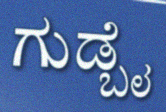
ಗುಡ್ಬೈ